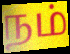
நம்